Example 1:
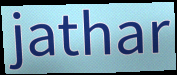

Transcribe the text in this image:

jathar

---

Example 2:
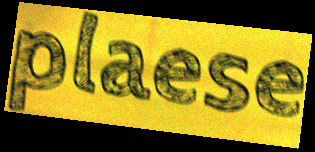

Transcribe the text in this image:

plaese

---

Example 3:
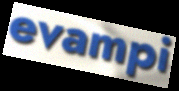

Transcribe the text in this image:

evampi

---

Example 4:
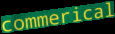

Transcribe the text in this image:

commerical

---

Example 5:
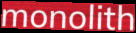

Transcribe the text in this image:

monolith